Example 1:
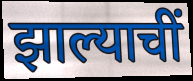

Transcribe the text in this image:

झाल्याचीं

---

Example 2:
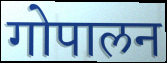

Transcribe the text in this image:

गोपालन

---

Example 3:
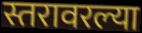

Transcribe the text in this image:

स्तरावरल्या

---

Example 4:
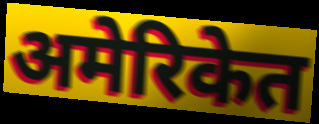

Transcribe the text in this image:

अमेरिकेत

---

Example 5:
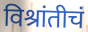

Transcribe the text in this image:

विश्रांतीचं